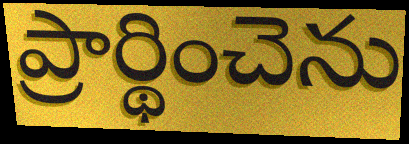
ప్రార్థించెను